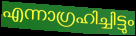
എന്നാഗ്രഹിച്ചിട്ടും